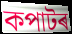
কপাটৰ